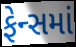
ફેન્સમાં